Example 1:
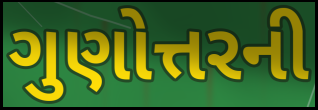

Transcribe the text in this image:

ગુણોત્તરની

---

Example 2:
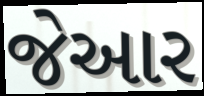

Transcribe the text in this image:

જેઆર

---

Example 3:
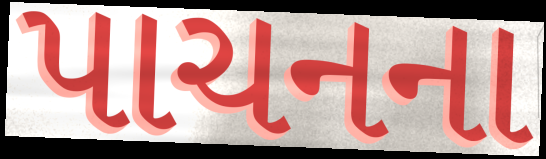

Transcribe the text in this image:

પાચનના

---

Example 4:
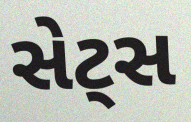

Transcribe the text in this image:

સેટ્સ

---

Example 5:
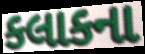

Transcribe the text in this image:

કલાકના